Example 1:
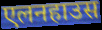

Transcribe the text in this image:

एलनहाउस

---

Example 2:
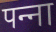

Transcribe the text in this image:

पन्‍ना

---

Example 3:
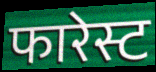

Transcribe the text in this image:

फारेस्‍ट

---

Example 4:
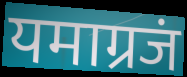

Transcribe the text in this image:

यमाग्रजं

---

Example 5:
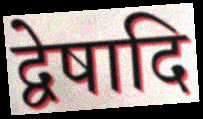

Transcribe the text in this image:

द्वेषादि